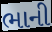
ભાની